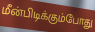
மீன்பிடிக்கும்போது